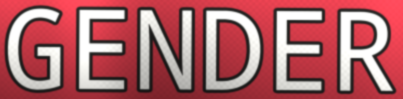
GENDER